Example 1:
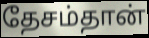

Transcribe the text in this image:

தேசம்தான்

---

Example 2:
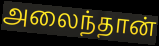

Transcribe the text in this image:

அலைந்தான்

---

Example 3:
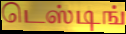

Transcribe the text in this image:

டெஸ்டிங்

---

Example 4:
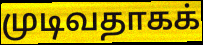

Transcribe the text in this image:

முடிவதாகக்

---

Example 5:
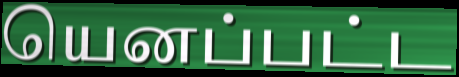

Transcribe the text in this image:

யெனப்பட்ட